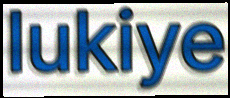
lukiye